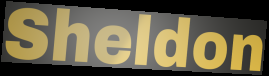
Sheldon